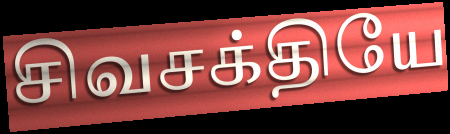
சிவசக்தியே